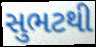
સુભટથી